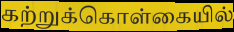
கற்றுக்கொள்கையில்